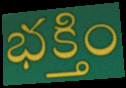
భక్తిం